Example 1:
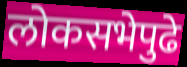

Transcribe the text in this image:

लोकसभेपुढे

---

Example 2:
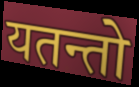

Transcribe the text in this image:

यतन्तो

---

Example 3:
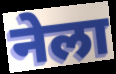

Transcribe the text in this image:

नेला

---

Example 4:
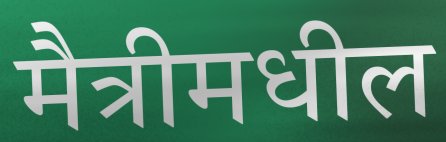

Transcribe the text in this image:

मैत्रीमधील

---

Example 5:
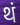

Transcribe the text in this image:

थं